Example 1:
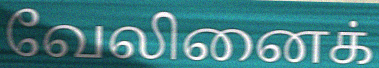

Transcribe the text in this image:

வேலினைக்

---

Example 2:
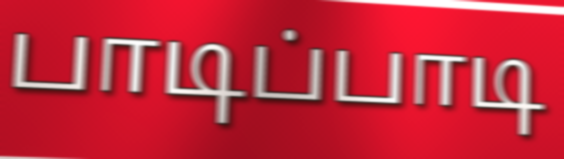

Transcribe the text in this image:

பாடிப்பாடி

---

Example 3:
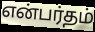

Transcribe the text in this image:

என்பர்தம்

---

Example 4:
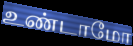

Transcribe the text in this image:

உண்டாமோ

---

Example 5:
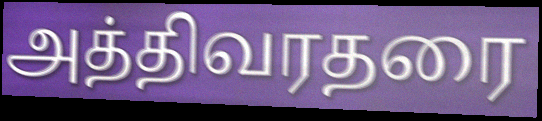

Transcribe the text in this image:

அத்திவரதரை